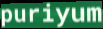
puriyum